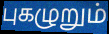
புகழுறும்